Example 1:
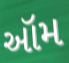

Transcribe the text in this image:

ઑમ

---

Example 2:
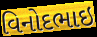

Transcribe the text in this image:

વિનોદભાઇ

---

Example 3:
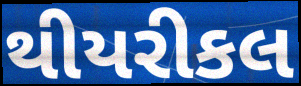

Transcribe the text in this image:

થીયરીકલ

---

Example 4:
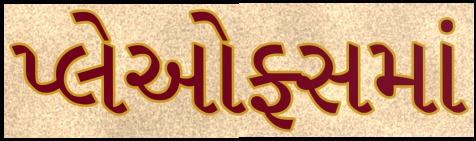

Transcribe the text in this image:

પ્લેઓફ્સમાં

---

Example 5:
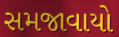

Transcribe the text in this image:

સમજાવાયો